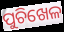
ପୁଚିଖେଳ